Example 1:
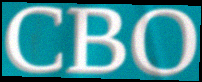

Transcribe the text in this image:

CBO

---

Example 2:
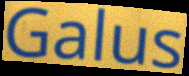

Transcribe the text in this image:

Galus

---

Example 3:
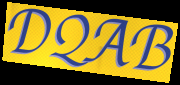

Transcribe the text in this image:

DQAB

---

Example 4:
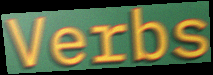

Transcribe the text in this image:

Verbs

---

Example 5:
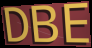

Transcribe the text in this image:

DBE